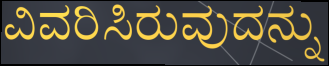
ವಿವರಿಸಿರುವುದನ್ನು